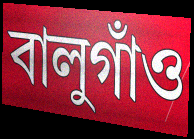
বালুগাঁও